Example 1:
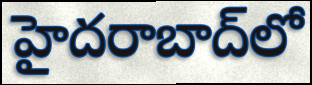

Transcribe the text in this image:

హైదరాబాద్‌లో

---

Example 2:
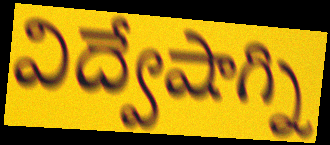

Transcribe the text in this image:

విద్వేషాగ్ని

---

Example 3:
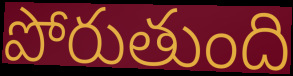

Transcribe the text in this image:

పోరుతుంది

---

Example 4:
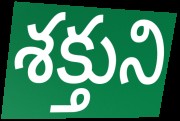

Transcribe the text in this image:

శక్తుని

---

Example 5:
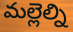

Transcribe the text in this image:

మల్లెల్ని